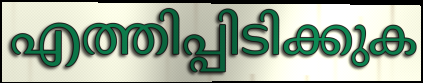
എത്തിപ്പിടിക്കുക